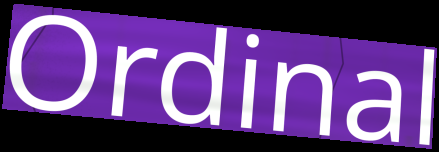
Ordinal